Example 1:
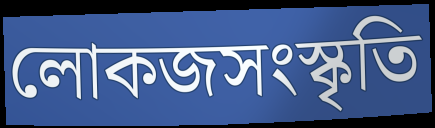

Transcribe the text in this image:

লোকজসংস্কৃতি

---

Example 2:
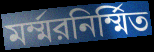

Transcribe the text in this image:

মর্ম্মরনির্ম্মিত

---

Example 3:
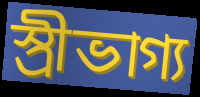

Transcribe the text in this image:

স্ত্রীভাগ্য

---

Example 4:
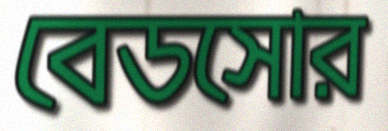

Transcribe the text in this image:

বেডসোর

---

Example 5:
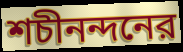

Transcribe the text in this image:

শচীনন্দনের